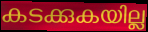
കടക്കുകയില്ല